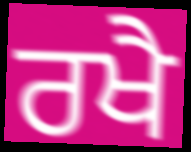
ਰਖੈ